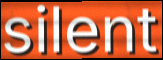
silent